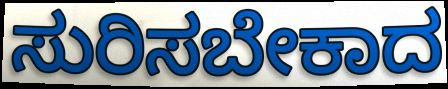
ಸುರಿಸಬೇಕಾದ